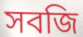
সবজি